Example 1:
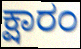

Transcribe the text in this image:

ಕ್ಷಾರಂ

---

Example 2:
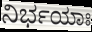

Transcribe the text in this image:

ನಿರ್ಭಯಾಃ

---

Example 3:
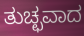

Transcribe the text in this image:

ತುಚ್ಛವಾದ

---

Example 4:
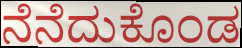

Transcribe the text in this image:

ನೆನೆದುಕೊಂಡ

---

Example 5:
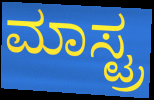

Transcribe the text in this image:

ಮಾಸ್ಟ್ರ